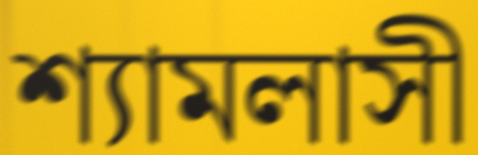
শ্যামলাসী